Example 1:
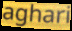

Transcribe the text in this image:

aghari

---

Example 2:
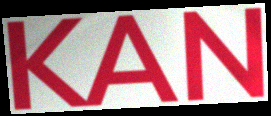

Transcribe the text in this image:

KAN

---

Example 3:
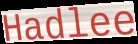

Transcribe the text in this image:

Hadlee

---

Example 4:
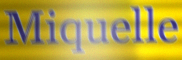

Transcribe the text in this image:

Miquelle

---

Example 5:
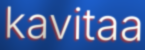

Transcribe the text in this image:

kavitaa